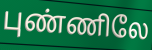
புண்ணிலே